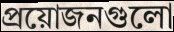
প্রয়োজনগুলো